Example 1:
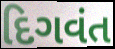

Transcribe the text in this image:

દિગવંત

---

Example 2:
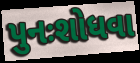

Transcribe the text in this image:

પુનઃશોધવા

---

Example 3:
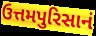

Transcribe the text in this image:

ઉત્તમપુરિસાનં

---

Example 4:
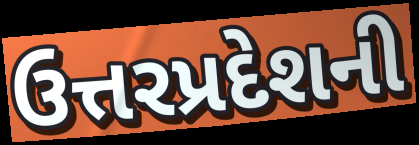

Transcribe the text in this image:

ઉત્તરપ્રદેશની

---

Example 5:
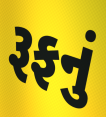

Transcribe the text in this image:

રૂફનું